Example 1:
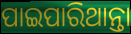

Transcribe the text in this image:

ପାଇପାରିଥାନ୍ତା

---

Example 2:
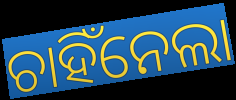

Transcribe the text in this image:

ଚାହିଁନେଲା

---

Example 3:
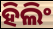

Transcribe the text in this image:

ହିଲିଂ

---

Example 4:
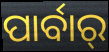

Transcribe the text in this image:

ପାର୍ବାର୍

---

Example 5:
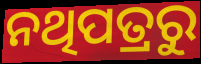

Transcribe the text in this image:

ନଥିପତ୍ରରୁ